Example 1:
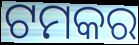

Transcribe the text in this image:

ଟମକର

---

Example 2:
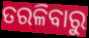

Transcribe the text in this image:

ତରଳିବାରୁ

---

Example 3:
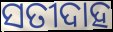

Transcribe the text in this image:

ସତୀଦାହ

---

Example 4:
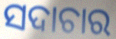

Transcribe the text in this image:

ସଦାଚାର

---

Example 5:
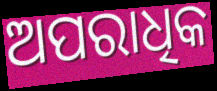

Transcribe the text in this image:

ଅପରାଧିକ